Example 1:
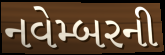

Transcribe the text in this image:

નવેમ્બરની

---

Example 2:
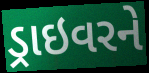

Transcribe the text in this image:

ડ્રાઇવરને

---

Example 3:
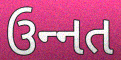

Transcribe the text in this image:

ઉન્‍નત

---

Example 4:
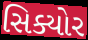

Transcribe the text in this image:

સિક્યોર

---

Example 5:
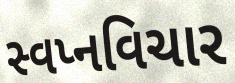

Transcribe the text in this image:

સ્વપ્નવિચાર